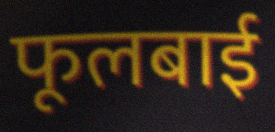
फूलबाई